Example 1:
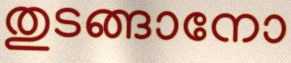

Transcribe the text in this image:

തുടങ്ങാനോ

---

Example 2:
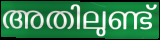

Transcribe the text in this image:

അതിലുണ്ട്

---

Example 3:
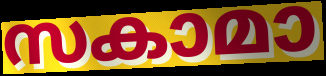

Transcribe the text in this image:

സകാമാ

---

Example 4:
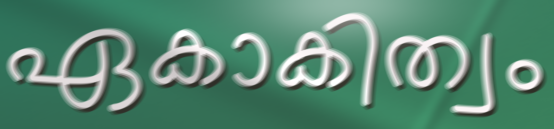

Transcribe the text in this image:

ഏകാകിത്വം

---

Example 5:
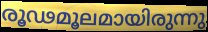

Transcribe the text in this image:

രൂഢമൂലമായിരുന്നു